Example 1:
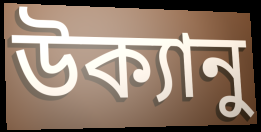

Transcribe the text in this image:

উক্যানু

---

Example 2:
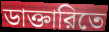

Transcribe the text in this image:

ডাক্তারিতে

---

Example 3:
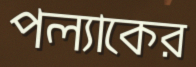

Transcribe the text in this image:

পল্যাকের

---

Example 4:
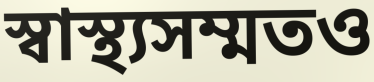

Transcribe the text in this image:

স্বাস্থ্যসম্মতও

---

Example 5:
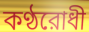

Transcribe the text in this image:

কণ্ঠরোধী